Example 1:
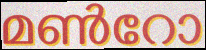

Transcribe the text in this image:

മൺറോ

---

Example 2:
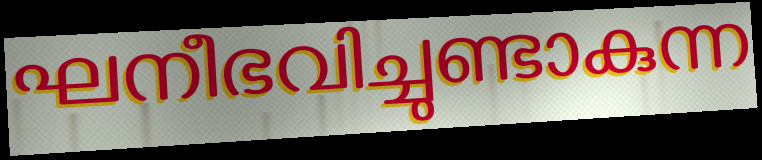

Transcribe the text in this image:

ഘനീഭവിച്ചുണ്ടാകുന്ന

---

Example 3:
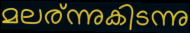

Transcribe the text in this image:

മലര്ന്നുകിടന്നു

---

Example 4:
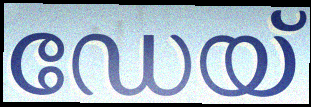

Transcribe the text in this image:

ഡേയ്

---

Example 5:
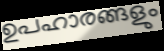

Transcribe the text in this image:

ഉപഹാരങ്ങളും